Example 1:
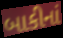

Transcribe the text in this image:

બાકીનાં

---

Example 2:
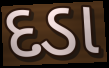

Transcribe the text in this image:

દડા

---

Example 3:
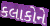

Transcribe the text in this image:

કલાકોને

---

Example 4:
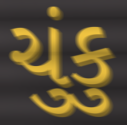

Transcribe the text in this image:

ચુંકુ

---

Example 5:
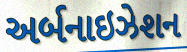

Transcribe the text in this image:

અર્બનાઇઝેશન